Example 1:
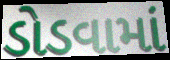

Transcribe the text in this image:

ડોડવામાં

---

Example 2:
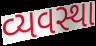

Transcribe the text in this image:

વ્યવસ્થા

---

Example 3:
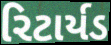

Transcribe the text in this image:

રિટાર્યડ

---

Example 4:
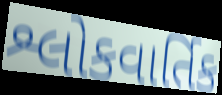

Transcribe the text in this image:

શ્લોકવાર્તિક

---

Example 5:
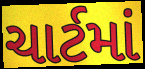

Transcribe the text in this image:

ચાર્ટમાં